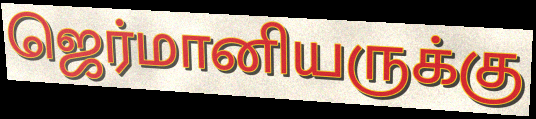
ஜெர்மானியருக்கு